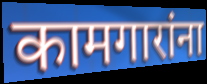
कामगारांना